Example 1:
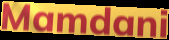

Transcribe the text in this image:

Mamdani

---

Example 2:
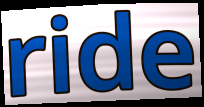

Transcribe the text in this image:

ride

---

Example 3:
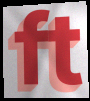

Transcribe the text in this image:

ft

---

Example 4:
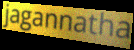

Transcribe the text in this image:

jagannatha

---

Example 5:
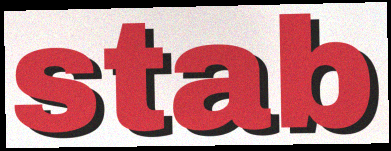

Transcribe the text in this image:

stab